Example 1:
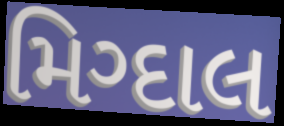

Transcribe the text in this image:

મિગ્દાલ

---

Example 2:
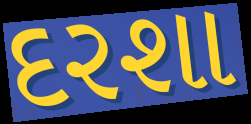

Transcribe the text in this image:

દરશા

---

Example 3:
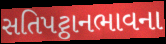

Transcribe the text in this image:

સતિપટ્ઠાનભાવના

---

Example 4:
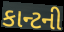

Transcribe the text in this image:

કાન્ટની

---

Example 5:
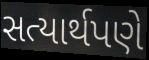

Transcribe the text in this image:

સત્યાર્થપણે